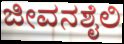
ಜೀವನಶೈಲಿ